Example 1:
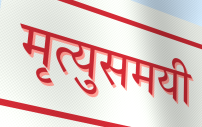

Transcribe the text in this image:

मृत्युसमयी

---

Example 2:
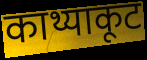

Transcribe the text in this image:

काथ्याकूट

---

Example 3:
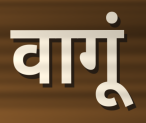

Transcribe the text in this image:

वागूं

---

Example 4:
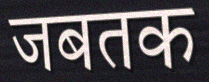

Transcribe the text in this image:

जबतक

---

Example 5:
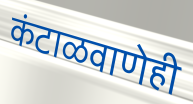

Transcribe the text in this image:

कंटाळवाणेही